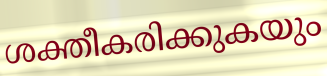
ശക്തീകരിക്കുകയും